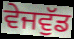
ਵੇਜਵੁੱਡ